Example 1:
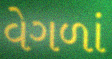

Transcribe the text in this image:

વેગળાં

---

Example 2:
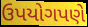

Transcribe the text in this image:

ઉપયોગપણે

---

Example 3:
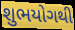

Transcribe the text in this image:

શુભયોગથી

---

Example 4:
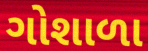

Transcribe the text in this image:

ગોશાળા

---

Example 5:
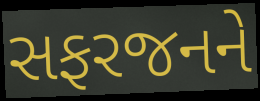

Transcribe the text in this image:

સફરજનને